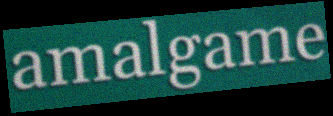
amalgame